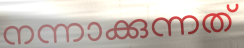
നന്നാക്കുന്നത്